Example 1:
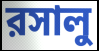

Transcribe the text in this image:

রসালু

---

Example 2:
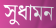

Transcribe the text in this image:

সুধামন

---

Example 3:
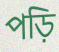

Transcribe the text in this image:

পড়ি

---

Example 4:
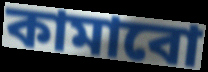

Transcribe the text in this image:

কামাবো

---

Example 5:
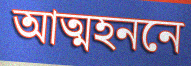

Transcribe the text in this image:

আত্মহননে